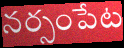
నర్సంపేట